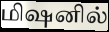
மிஷனில்